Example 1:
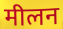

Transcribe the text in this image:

मीलन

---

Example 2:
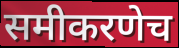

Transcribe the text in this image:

समीकरणेच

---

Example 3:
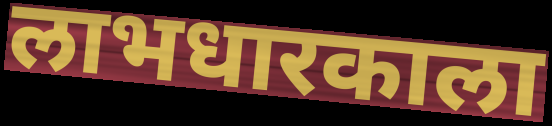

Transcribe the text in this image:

लाभधारकाला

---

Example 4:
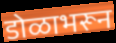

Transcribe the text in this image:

डोळाभरून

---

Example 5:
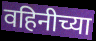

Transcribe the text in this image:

वहिनीच्या